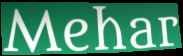
Mehar